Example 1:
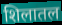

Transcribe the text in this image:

शिलातल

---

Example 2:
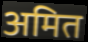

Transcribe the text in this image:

अमित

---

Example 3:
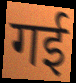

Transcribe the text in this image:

गई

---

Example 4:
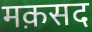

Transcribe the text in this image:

मक़सद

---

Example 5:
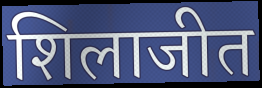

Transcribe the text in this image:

शिलाजीत